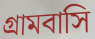
গ্রামবাসি